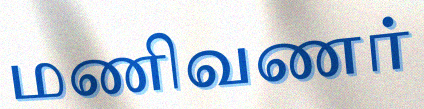
மணிவணர்